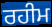
ਰਹੀਮ